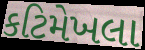
કટિમેખલા